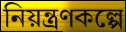
নিয়ন্ত্রণকল্পে